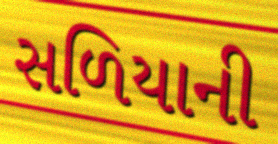
સળિયાની